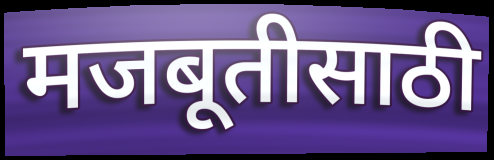
मजबूतीसाठी